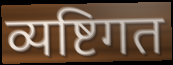
व्यष्टिगत